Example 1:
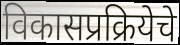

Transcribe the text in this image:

विकासप्रक्रियेचे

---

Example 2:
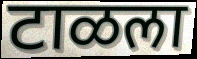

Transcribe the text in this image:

टाळला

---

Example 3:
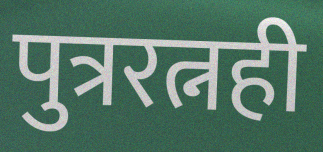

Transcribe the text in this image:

पुत्ररत्नही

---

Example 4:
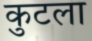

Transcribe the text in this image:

कुटला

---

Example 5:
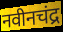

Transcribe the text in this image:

नवीनचंद्र